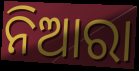
ନିଆରା